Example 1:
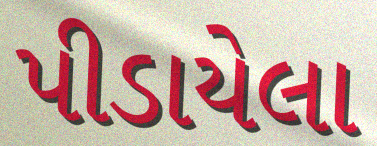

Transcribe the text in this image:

પીડાયેલા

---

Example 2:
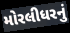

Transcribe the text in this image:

મોરલીધરનું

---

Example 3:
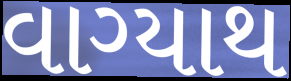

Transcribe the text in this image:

વાગ્યાથ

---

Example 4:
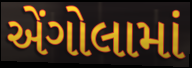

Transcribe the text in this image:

એંગોલામાં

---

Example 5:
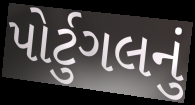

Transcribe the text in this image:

પોર્ટુગલનું